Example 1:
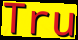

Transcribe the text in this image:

Tru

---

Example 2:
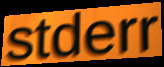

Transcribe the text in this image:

stderr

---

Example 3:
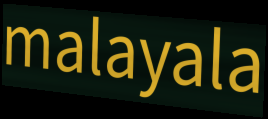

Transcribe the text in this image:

malayala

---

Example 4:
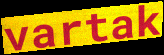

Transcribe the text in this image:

vartak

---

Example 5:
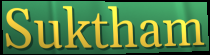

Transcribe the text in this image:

Suktham